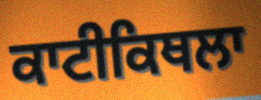
ਕਾਟੀਕਿਥਲਾ